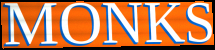
MONKS